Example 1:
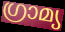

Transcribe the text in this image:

ഗ്രാമ്യ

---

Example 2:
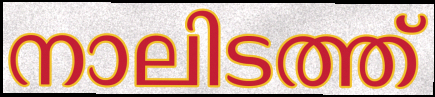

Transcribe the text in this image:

നാലിടത്ത്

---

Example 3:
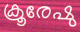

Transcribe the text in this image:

ക്രൂരേഷു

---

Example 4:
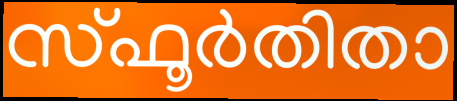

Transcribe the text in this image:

സ്ഫൂർതിതാ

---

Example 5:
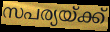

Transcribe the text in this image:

സപര്യയ്ക്ക്